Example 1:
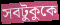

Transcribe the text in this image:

সবটুকুকে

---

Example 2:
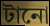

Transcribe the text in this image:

টানো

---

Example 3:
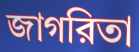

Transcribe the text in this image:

জাগরিতা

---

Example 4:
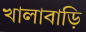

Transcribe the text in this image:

খালাবাড়ি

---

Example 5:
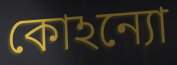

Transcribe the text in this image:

কোঽন্যো